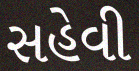
સહેવી